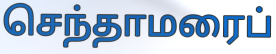
செந்தாமரைப்